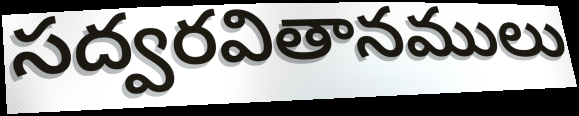
సద్వరవితానములు